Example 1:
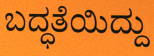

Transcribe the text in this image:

ಬದ್ಧತೆಯಿದ್ದು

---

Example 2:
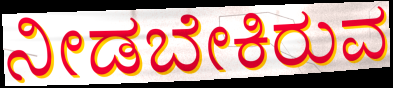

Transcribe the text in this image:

ನೀಡಬೇಕಿರುವ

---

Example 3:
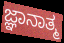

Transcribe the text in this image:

ಜ್ಞಾನಾತ್ಮ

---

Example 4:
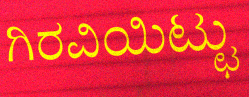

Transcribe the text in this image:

ಗಿರವಿಯಿಟ್ಟು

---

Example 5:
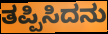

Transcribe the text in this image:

ತಪ್ಪಿಸಿದನು